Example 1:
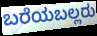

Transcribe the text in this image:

ಬರೆಯಬಲ್ಲರು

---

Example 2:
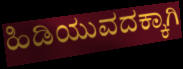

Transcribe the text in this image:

ಹಿಡಿಯುವದಕ್ಕಾಗಿ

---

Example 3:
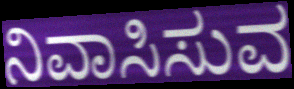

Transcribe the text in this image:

ನಿವಾಸಿಸುವ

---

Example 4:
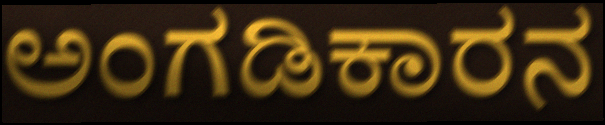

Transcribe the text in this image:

ಅಂಗಡಿಕಾರನ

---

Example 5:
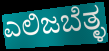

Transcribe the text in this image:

ಎಲಿಜಬೆತ್ಳ